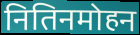
नितिनमोहन